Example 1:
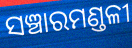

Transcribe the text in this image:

ସଞ୍ଚାରମଣ୍ଡଳୀ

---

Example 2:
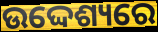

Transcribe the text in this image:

ଉଦ୍ଦେଶ୍ୟରେ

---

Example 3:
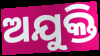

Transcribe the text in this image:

ଅଯୁକ୍ତି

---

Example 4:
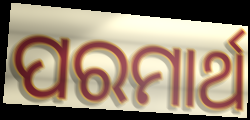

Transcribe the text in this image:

ପରମାର୍ଥ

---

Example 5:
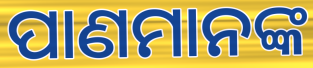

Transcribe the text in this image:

ପାଣମାନଙ୍କ